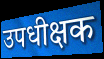
उपधीक्षक